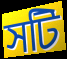
সটি